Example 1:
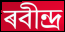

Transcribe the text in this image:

ৰবীন্দ্ৰ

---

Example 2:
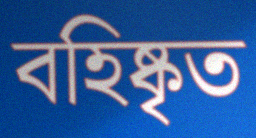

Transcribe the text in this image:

বহিষ্কৃত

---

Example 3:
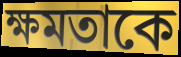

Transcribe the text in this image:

ক্ষমতাকে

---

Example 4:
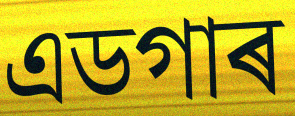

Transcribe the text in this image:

এডগাৰ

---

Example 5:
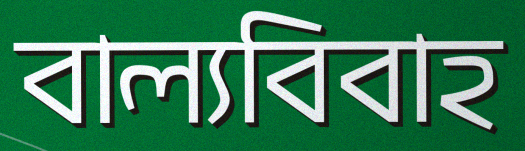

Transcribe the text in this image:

বাল্যবিবাহ